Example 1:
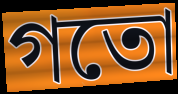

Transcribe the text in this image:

গতো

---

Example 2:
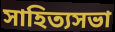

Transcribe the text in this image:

সাহিত্যসভা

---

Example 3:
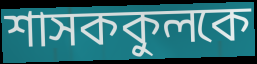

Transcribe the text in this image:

শাসককুলকে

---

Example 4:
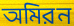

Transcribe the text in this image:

অমিরন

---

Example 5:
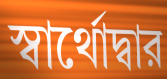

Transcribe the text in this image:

স্বার্থোদ্বার